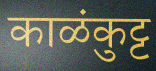
काळंकुट्ट